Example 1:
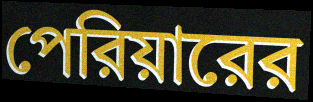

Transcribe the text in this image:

পেরিয়ারের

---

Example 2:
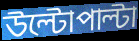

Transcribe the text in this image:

উল্টোপাল্টা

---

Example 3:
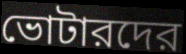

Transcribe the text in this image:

ভোটারদের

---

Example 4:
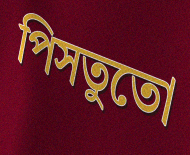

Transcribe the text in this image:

পিসতুতো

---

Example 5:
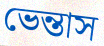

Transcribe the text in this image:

ভেন্তাস